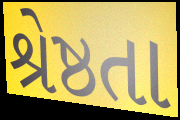
શ્રેષ્ઠતા